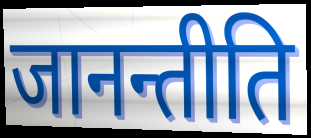
जानन्तीति